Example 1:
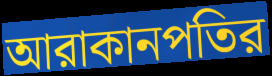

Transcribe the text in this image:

আরাকানপতির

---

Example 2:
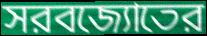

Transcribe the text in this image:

সরবজ্যোতের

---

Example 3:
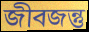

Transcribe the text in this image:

জীবজন্তু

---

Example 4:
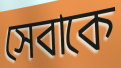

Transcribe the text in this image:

সেবাকে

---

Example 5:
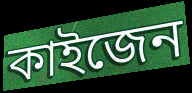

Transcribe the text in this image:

কাইজেন